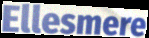
Ellesmere